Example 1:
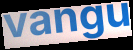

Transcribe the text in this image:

vangu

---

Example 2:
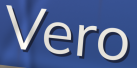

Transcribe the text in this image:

Vero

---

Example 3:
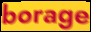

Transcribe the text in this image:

borage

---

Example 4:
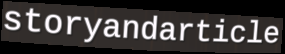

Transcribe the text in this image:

storyandarticle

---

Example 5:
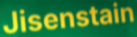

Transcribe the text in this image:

Jisenstain